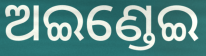
ଅଇଣ୍ଡେଇ